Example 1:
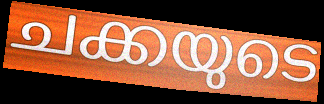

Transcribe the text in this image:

ചക്കയുടെ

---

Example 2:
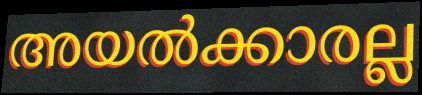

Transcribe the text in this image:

അയൽക്കാരല്ല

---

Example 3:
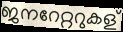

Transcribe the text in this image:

ജനറേറ്ററുകള്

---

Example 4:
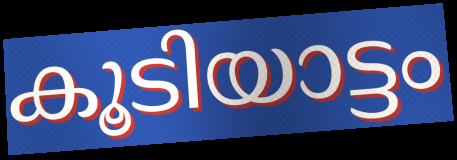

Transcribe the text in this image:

കൂടിയാട്ടം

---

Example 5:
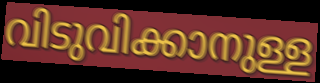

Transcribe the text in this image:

വിടുവിക്കാനുള്ള